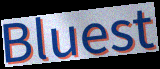
Bluest